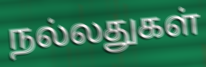
நல்லதுகள்